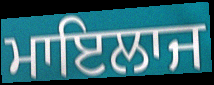
ਮਾਇਲਾਜ